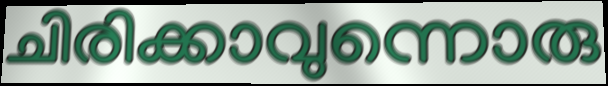
ചിരിക്കാവുന്നൊരു